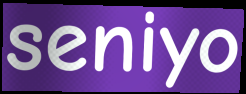
seniyo